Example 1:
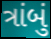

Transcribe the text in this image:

ત્રાંબું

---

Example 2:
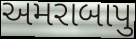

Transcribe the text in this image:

અમરાબાપુ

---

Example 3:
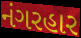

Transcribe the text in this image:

નંગરહાર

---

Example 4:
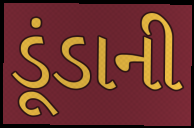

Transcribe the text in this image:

ડૂંડાની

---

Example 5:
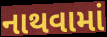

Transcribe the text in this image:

નાથવામાં